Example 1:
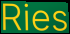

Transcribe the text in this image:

Ries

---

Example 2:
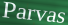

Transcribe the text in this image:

Parvas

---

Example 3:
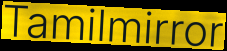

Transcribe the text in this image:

Tamilmirror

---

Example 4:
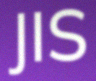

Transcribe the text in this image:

JIS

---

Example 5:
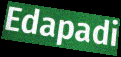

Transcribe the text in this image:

Edapadi